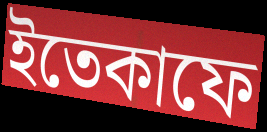
ইতেকাফে